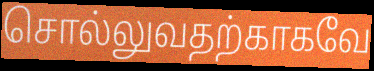
சொல்லுவதற்காகவே